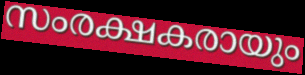
സംരക്ഷകരായും